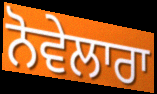
ਨੋਵੇਲਾਰਾ